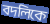
বদলিকে